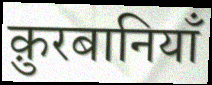
क़ुरबानियाँ